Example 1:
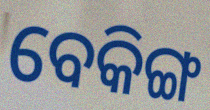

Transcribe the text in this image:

ବେକିଙ୍ଗ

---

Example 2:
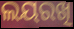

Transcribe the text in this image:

ଲୟରଖି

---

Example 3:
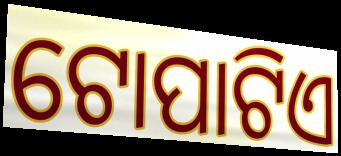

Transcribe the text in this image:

ଟୋପାଟିଏ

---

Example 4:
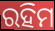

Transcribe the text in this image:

ରହିମ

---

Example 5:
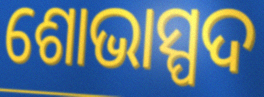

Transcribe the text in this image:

ଶୋଭାସ୍ପଦ